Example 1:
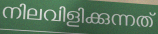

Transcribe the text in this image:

നിലവിളിക്കുന്നത്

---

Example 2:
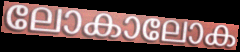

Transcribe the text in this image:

ലോകാലോക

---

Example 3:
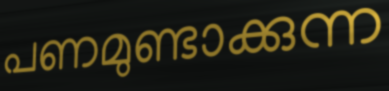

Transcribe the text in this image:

പണമുണ്ടാക്കുന്ന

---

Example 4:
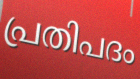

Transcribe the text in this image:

പ്രതിപദം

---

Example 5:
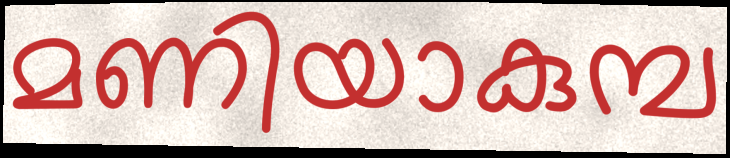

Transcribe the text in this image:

മണിയാകുമ്പ